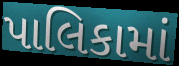
પાલિકામાં